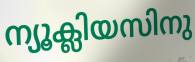
ന്യൂക്ലിയസിനു